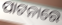
ପାଟନାରେ